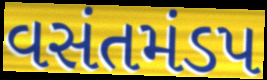
વસંતમંડપ